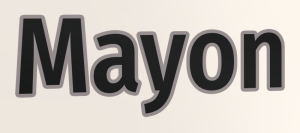
Mayon